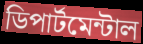
ডিপার্টমেন্টাল